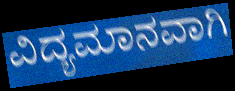
ವಿದ್ಯಮಾನವಾಗಿ